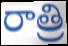
రాత్రి